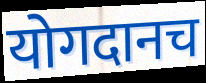
योगदानच